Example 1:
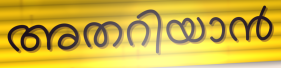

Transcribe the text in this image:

അതറിയാൻ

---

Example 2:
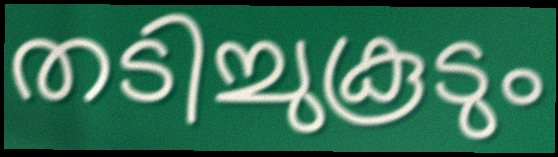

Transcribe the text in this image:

തടിച്ചുകൂടും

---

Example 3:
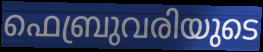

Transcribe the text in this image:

ഫെബ്രുവരിയുടെ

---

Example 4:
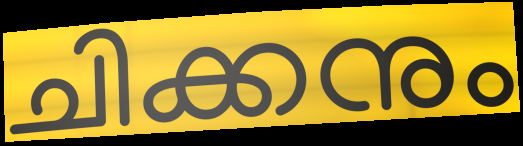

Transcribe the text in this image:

ചിക്കനും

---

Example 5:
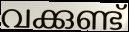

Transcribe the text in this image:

വക്കുണ്ട്